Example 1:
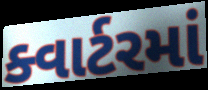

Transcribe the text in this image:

ક્વાર્ટરમાં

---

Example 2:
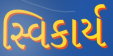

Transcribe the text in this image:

સ્વિકાર્ય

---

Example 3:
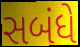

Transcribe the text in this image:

સબંધે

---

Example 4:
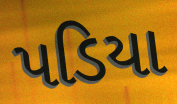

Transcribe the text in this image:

પડિયા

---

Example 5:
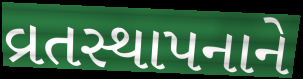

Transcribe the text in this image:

વ્રતસ્થાપનાને